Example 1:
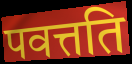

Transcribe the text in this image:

पवत्तति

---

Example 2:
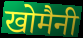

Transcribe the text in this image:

खोमैनी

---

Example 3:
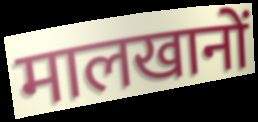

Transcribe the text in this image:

मालखानों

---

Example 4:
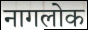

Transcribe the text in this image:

नागलोक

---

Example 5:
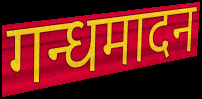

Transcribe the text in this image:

गन्धमादन